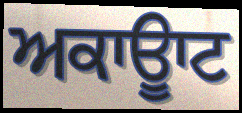
ਅਕਾਊਾਟ